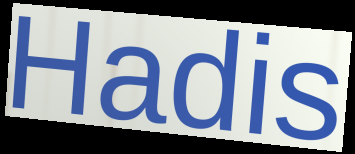
Hadis